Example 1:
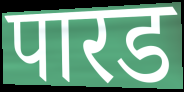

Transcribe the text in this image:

पारड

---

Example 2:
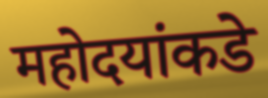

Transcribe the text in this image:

महोदयांकडे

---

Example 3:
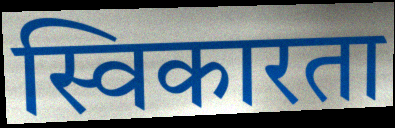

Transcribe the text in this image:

स्विकारता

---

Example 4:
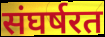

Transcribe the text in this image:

संघर्षरत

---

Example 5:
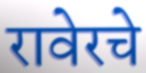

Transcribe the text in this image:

रावेरचे